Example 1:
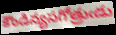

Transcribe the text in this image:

కౌండిన్యసగోత్రుఁడు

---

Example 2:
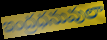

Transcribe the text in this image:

ఇంద్రధనువులా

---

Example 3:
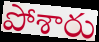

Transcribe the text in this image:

పోశారు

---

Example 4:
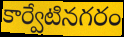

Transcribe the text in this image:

కార్వేటినగరం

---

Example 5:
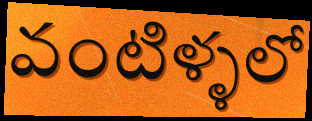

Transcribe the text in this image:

వంటిళ్ళలో